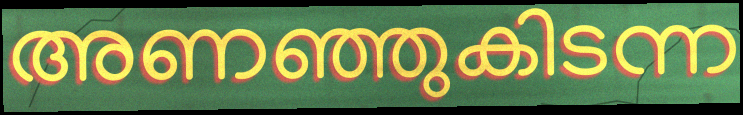
അണഞ്ഞുകിടന്ന